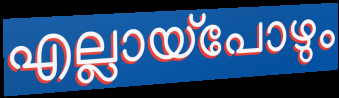
എല്ലായ്പോഴും